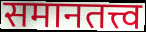
समानतत्त्व